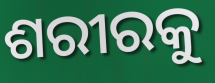
ଶରୀରକୁ